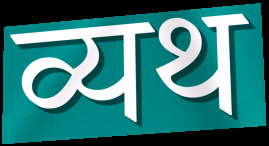
व्यथ